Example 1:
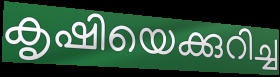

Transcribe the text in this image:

കൃഷിയെക്കുറിച്ച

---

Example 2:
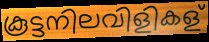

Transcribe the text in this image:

കൂട്ടനിലവിളികള്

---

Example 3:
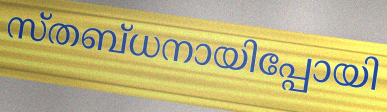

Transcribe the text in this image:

സ്തബ്ധനായിപ്പോയി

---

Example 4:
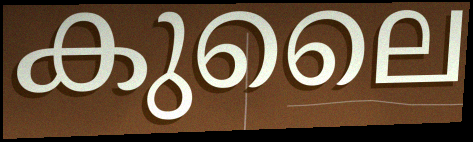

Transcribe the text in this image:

കുലൈ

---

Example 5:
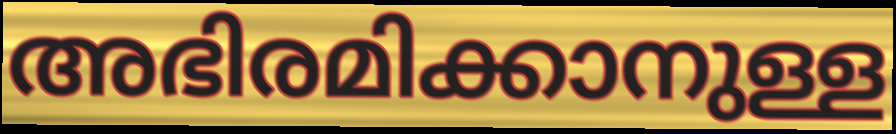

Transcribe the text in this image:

അഭിരമിക്കാനുള്ള